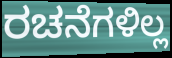
ರಚನೆಗಳಿಲ್ಲ